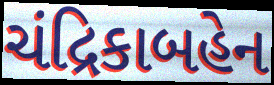
ચંદ્રિકાબહેન